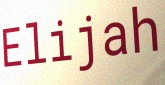
Elijah